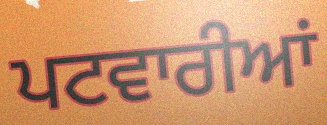
ਪਟਵਾਰੀਆਂ